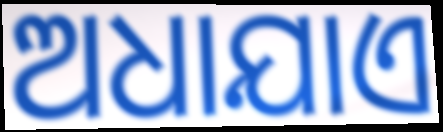
ଅଧାଯାଏ